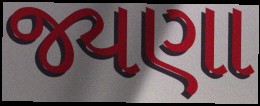
જ્યણા